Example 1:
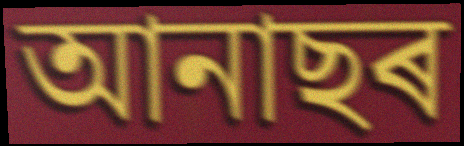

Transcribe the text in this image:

আনাছৰ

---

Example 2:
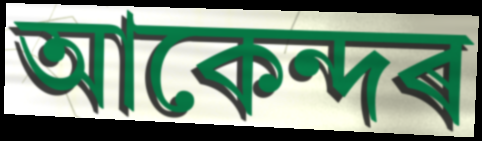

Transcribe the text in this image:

আকেন্দৰ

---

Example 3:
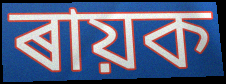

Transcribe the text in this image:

ৰায়ক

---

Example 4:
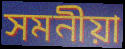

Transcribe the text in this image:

সমনীয়া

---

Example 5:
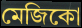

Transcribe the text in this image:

মেজিকো